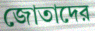
জোতাদের